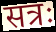
सत्रः